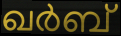
ഖർബ്